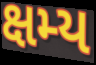
ક્ષમ્ય